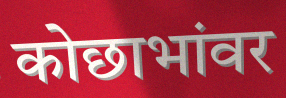
कोछाभांवर